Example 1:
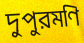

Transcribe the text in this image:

দুপুরমণি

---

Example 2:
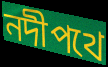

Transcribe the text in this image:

নদীপথে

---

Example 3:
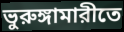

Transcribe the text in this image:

ভুরুঙ্গামারীতে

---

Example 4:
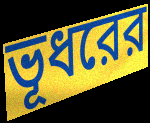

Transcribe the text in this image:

ভূধরের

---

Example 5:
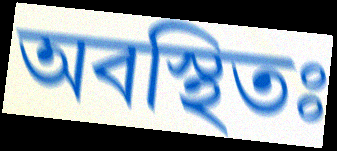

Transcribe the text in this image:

অবস্থিতঃ